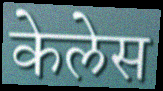
केलेस